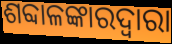
ଶବ୍ଦାଳଙ୍କାରଦ୍ୱାରା